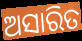
ଅସାରିତ